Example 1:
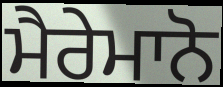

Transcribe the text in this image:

ਮੈਰੇਮਾਨੋ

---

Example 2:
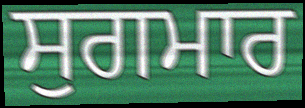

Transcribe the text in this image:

ਸੁਗਮਾਰ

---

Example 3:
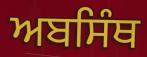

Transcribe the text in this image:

ਅਬਸਿੰਥ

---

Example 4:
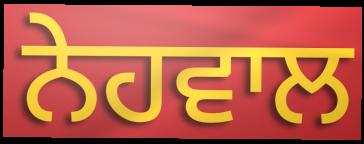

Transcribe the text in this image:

ਨੇਹਵਾਲ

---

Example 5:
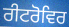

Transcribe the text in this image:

ਰੀਟਰੋਵਿਰ